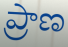
ప్రాణ